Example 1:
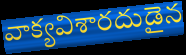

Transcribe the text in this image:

వాక్యవిశారదుడైన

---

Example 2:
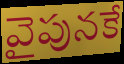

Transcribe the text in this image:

వైపునకే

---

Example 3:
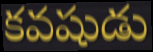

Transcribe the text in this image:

కవషుడు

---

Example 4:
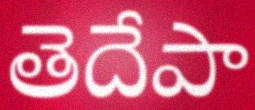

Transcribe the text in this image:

తెదేపా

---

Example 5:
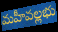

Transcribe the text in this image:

మహీవల్లభు